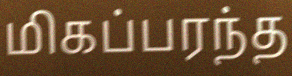
மிகப்பரந்த